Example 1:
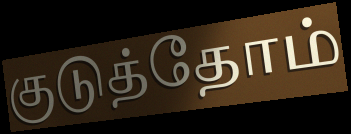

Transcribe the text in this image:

குடுத்தோம்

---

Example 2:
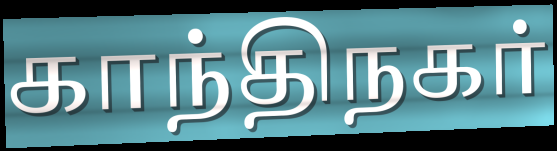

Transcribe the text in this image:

காந்திநகர்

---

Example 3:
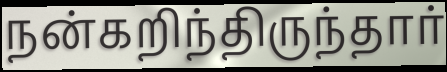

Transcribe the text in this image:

நன்கறிந்திருந்தார்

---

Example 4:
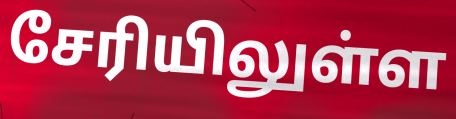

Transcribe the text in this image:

சேரியிலுள்ள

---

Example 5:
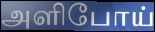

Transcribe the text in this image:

அளிபோய்